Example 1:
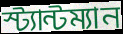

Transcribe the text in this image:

স্ট্যান্টম্যান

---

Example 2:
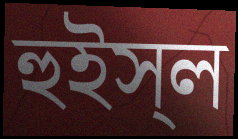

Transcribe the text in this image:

হুইস্‌ল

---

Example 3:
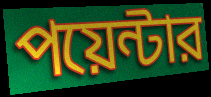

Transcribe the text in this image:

পয়েন্টার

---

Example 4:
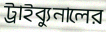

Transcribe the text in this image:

ট্রাইব্যুনালের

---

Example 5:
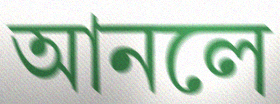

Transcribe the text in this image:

আনলে